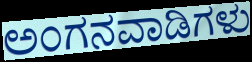
ಅಂಗನವಾಡಿಗಳು